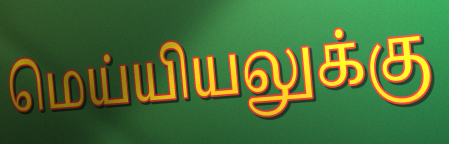
மெய்யியலுக்கு